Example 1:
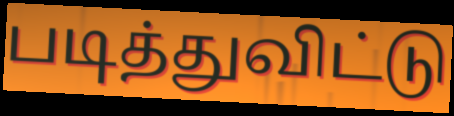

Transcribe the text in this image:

படித்துவிட்டு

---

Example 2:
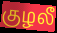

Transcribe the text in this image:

குழலீ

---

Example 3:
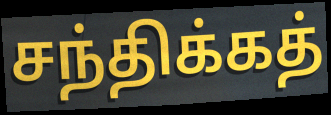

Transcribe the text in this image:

சந்திக்கத்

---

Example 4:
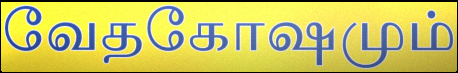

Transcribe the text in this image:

வேதகோஷமும்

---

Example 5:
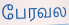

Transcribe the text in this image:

பேரவல